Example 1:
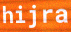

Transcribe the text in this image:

hijra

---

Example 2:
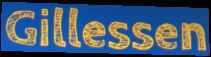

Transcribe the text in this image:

Gillessen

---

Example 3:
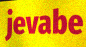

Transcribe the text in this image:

jevabe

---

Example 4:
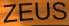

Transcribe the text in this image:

ZEUS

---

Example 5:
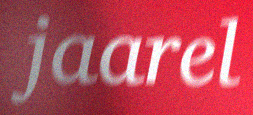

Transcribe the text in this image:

jaarel